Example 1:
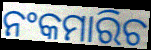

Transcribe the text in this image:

ନଂକମାରିଚ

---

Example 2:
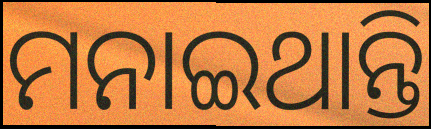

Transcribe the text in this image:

ମନାଇଥାନ୍ତି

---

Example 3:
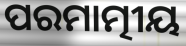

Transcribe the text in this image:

ପରମାତ୍ମୀୟ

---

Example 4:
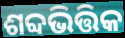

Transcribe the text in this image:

ଶବ୍ଦଭିତ୍ତିକ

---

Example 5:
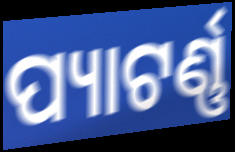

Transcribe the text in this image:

ପ୍ୟାଟର୍ଣ୍ଣ